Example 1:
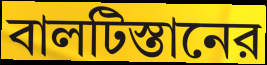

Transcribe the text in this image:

বালটিস্তানের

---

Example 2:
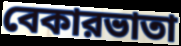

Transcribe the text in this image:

বেকারভাতা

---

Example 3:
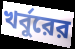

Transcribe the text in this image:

খর্বুরের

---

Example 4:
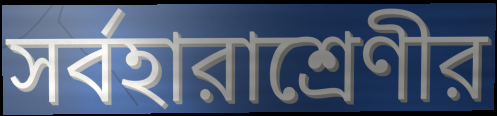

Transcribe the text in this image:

সর্বহারাশ্রেণীর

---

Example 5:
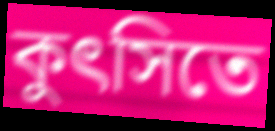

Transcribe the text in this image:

কুৎসিতে